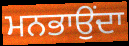
ਮਨਭਾਉਂਦਾ